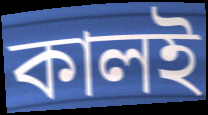
কালই